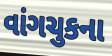
વાંગચુકના